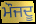
ਮੌਜਦੂ